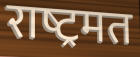
राष्ट्रमत